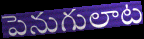
పెనుగులాట